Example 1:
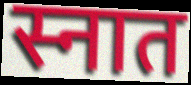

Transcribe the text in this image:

स्नात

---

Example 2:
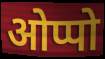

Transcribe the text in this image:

ओप्पो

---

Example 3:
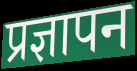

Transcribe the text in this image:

प्रज्ञापन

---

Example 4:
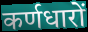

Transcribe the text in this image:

कर्णधारों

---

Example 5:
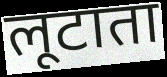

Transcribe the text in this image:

लूटाता